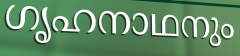
ഗൃഹനാഥനും